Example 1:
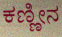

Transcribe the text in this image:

ಕಣ್ಣೀನ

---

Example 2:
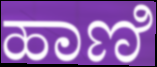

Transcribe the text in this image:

ಹಾಣಿ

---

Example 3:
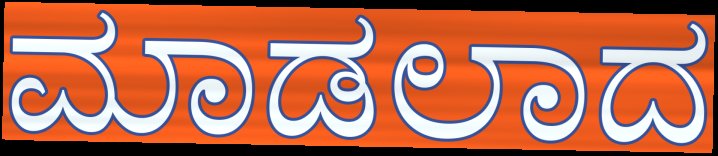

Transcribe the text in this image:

ಮಾಡಲಾದ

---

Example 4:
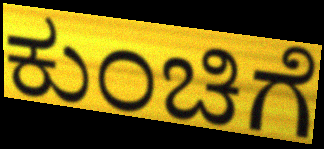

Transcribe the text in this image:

ಕುಂಚಿಗೆ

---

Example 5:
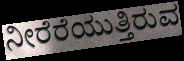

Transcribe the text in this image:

ನೀರೆರೆಯುತ್ತಿರುವ